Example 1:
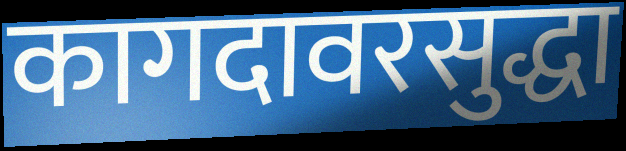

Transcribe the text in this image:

कागदावरसुद्धा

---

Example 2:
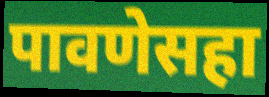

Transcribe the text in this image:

पावणेसहा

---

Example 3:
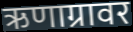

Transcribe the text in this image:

ऋणाग्रावर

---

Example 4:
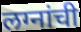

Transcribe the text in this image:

लग्नांची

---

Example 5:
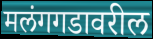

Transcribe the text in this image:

मलंगगडावरील